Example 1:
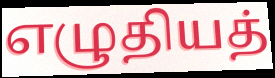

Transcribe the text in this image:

எழுதியத்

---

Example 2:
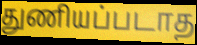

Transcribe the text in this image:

துணியப்படாத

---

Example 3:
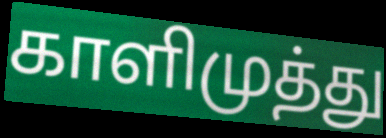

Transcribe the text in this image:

காளிமுத்து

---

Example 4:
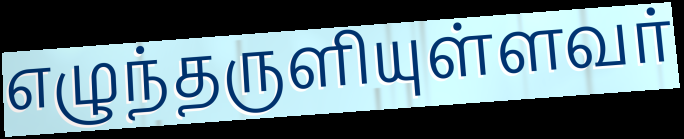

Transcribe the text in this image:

எழுந்தருளியுள்ளவர்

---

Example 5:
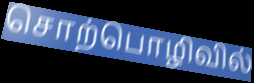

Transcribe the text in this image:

சொற்பொழிவில்